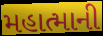
મહાત્માની